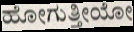
ಹೋಗುತ್ತೀಯೋ